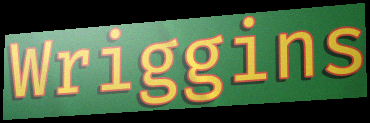
Wriggins